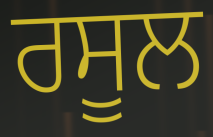
ਰਸੂਲ